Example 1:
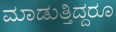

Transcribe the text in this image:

ಮಾಡುತ್ತಿದ್ದರೂ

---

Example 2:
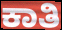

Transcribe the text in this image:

ಕಾತಿ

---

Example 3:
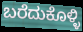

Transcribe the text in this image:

ಬರೆದುಕೊಳ್ಳಿ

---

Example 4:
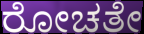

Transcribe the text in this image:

ರೋಚತೇ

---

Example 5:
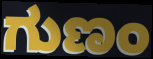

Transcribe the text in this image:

ಗುಣಂ